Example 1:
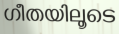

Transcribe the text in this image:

ഗീതയിലൂടെ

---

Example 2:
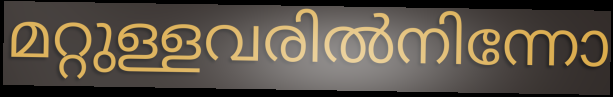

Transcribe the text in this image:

മറ്റുള്ളവരിൽനിന്നോ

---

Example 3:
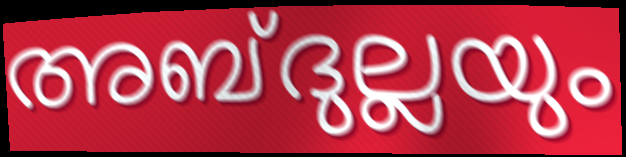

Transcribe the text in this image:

അബ്ദുല്ലയും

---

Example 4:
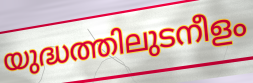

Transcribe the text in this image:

യുദ്ധത്തിലുടനീളം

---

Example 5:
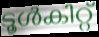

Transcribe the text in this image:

ടൂൾകിറ്റ്